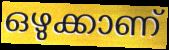
ഒഴുക്കാണ്